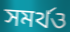
সমর্থও